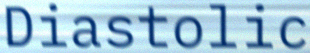
Diastolic